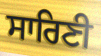
ਸਾਰਿਣੀ